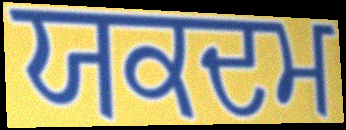
ਯਕਦਮ